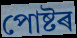
পোষ্টৰ